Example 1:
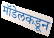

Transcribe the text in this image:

मॉडेलकडून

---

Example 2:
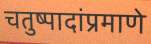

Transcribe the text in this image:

चतुष्पादांप्रमाणे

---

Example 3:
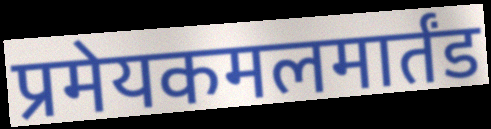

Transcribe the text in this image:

प्रमेयकमलमार्तंड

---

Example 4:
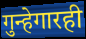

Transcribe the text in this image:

गुन्हेगारही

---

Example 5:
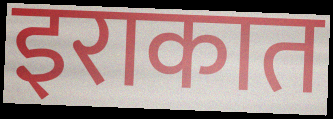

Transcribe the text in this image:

इराकात